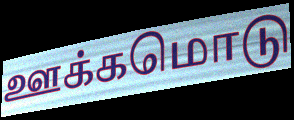
ஊக்கமொடு